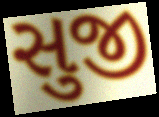
સુજી